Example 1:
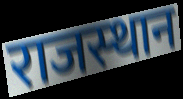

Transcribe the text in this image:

राजस्‍थान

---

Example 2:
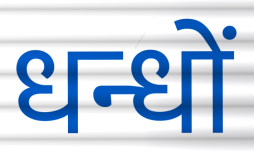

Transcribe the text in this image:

धन्धों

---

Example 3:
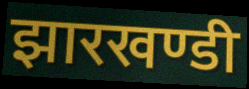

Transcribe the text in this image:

झारखण्डी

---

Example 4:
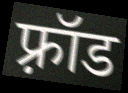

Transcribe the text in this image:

फ़्रॉड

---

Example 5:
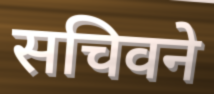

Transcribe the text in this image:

सचिवने